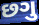
છગુ